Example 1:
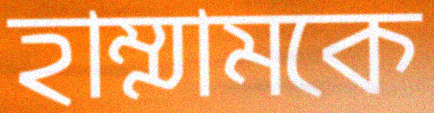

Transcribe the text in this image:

হাম্মামকে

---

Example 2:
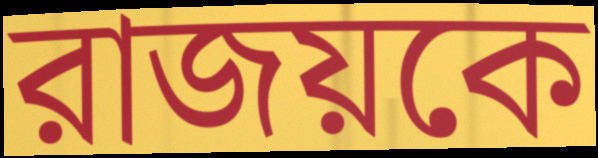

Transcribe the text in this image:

রাজয়কে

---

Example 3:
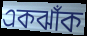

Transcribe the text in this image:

একঝাঁক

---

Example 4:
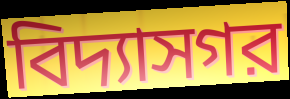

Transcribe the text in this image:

বিদ্যাসগর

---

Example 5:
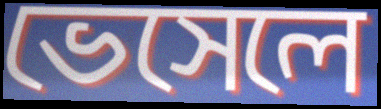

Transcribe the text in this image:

ভেসেলে